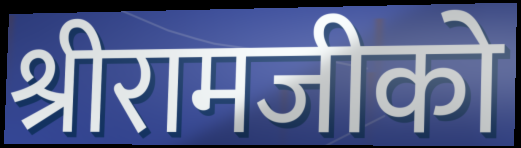
श्रीरामजीको